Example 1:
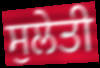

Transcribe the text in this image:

ਸੁਲੇਤੀ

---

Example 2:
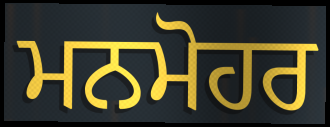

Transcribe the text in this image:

ਮਨਮੋਹਰ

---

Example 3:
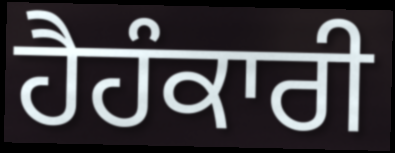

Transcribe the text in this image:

ਹੈਹੰਕਾਰੀ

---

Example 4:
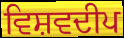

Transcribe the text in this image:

ਵਿਸ਼ਵਦੀਪ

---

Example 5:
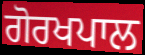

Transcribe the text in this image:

ਗੋਰਖਪਾਲ